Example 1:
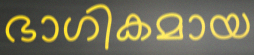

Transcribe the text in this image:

ഭാഗികമായ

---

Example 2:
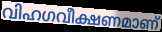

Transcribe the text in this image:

വിഹഗവീക്ഷണമാണ്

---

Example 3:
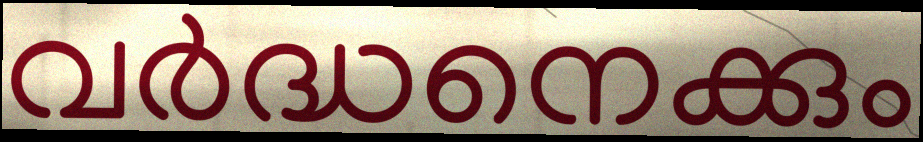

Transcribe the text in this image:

വർദ്ധനെക്കും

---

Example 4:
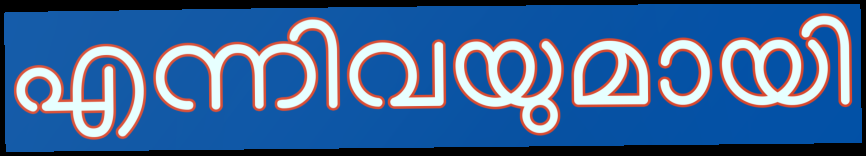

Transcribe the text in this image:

എന്നിവയുമായി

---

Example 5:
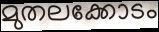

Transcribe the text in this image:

മുതലക്കോടം